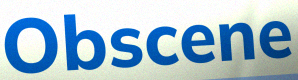
Obscene